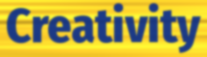
Creativity